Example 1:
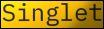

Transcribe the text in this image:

Singlet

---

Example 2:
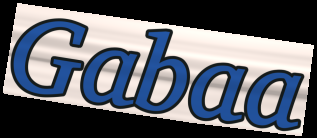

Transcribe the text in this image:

Gabaa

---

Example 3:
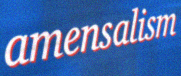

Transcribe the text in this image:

amensalism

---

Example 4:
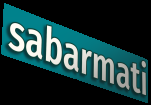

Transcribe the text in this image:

sabarmati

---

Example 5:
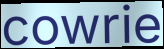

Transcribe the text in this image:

cowrie